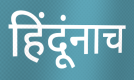
हिंदूंनाच